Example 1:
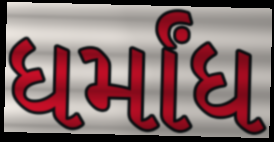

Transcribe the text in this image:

ધર્માંધ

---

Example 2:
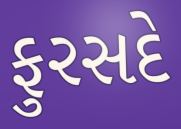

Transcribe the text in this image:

ફુરસદે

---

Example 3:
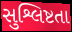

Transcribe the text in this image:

સુશ્લિષ્ટતા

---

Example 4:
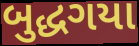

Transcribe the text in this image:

બુદ્ધગયા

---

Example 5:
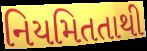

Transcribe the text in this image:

નિયમિતતાથી